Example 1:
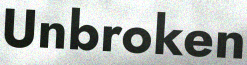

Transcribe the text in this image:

Unbroken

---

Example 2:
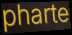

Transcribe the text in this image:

pharte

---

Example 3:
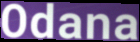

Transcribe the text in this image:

Odana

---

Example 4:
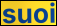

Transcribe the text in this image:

suoi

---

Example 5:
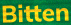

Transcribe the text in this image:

Bitten